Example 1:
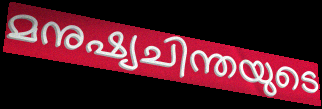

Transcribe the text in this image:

മനുഷ്യചിന്തയുടെ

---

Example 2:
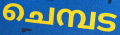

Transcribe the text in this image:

ചെമ്പട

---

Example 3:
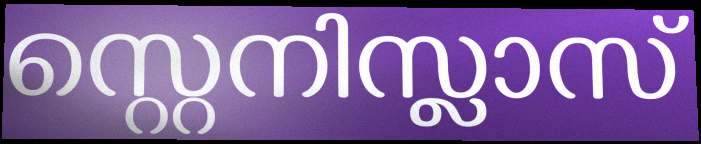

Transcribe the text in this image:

സ്റ്റെനിസ്ലാസ്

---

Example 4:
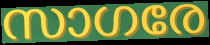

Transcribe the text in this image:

സാഗരേ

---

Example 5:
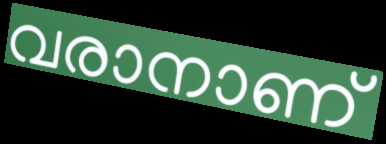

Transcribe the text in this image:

വരാനാണ്